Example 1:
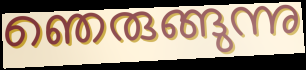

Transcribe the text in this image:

ഞെരുങ്ങുന്നു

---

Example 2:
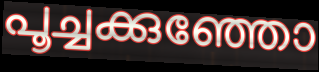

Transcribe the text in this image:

പൂച്ചക്കുഞ്ഞോ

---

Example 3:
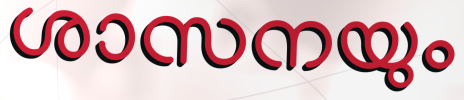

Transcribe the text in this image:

ശാസനയും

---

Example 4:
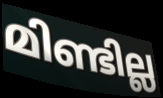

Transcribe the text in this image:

മിണ്ടില്ല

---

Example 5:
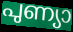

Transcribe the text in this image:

പുണ്യാ